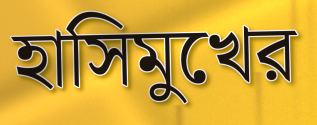
হাসিমুখের